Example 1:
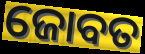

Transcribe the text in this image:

ଜୋବତ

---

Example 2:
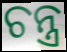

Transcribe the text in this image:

ଚନ୍ତ୍ର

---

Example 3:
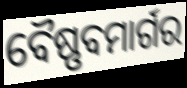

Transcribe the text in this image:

ବୈଷ୍ଣବମାର୍ଗର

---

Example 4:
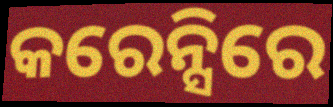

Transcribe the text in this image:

କରେନ୍ସିରେ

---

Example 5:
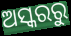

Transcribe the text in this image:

ଅସ୍କରରୁ